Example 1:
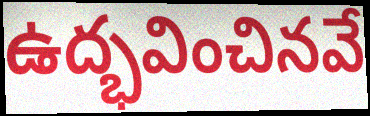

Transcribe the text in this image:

ఉద్భవించినవే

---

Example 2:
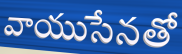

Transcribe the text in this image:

వాయుసేనతో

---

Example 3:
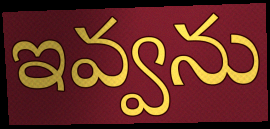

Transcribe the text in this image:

ఇవ్వను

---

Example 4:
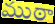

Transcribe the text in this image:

ముఠా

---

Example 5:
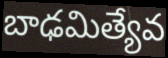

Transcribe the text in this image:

బాఢమిత్యేవ